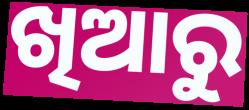
ଖିଆରୁ